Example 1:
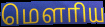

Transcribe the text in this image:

மெளரிய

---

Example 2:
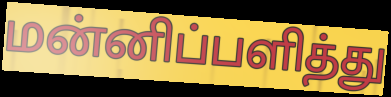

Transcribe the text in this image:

மன்னிப்பளித்து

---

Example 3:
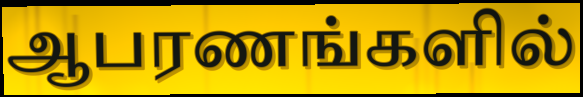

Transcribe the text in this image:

ஆபரணங்களில்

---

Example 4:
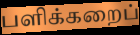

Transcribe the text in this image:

பளிக்கறைப்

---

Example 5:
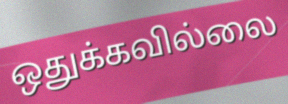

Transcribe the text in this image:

ஒதுக்கவில்லை